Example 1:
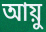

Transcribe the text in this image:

আয়ু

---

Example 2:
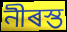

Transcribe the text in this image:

নীৰস্ত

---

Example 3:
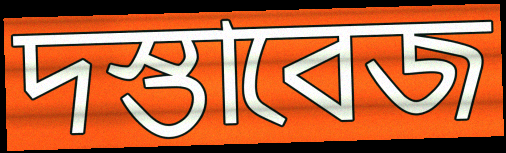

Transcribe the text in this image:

দস্তাবেজ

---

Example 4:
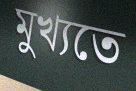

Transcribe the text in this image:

মুখ্যতে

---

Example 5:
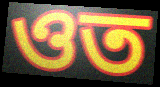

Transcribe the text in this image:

ওত